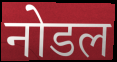
नोडल